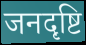
जनदृष्टि